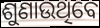
ଶୁଣାଉଥିବେ